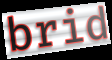
brid